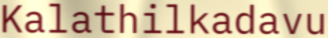
Kalathilkadavu